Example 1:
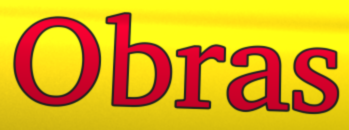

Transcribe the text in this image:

Obras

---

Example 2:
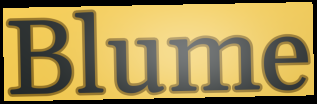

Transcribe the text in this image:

Blume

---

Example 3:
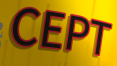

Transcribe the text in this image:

CEPT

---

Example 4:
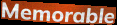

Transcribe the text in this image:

Memorable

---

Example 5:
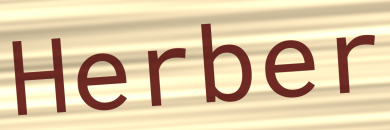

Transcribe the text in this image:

Herber